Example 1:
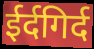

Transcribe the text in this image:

ईर्दगिर्द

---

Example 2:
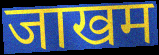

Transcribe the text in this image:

जाखम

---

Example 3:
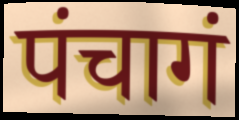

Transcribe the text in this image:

पंचागं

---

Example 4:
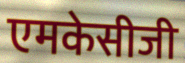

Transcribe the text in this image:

एमकेसीजी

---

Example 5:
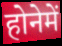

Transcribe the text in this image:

होनेमें